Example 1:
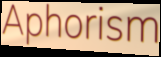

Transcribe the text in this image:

Aphorism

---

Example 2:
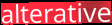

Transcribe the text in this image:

alterative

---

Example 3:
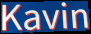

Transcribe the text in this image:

Kavin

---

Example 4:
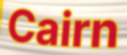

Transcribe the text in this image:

Cairn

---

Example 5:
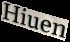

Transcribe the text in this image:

Hiuen